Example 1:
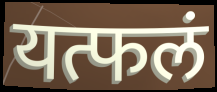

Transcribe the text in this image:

यत्फलं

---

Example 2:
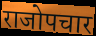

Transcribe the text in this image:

राजोपचार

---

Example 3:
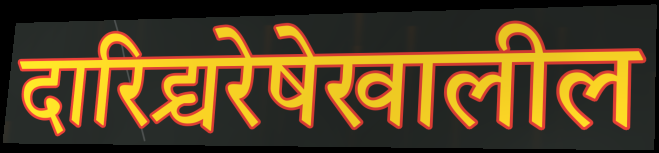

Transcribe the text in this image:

दारिद्र्यरेषेखालील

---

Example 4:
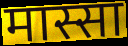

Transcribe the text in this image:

मास्सा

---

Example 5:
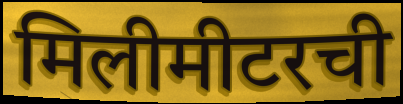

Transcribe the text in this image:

मिलीमीटरची